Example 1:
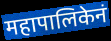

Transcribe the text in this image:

महापालिकेनं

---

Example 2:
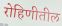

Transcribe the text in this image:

रोहिणीतील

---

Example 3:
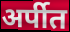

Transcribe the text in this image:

अर्पीत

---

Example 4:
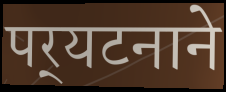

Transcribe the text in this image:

पर्यटनाने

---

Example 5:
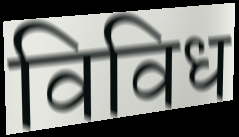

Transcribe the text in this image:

विविध